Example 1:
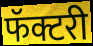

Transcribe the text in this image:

फॅक्टरी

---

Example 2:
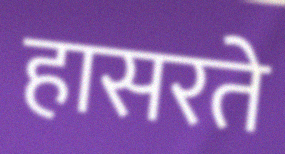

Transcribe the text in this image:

हासरते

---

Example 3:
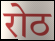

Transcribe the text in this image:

रोठ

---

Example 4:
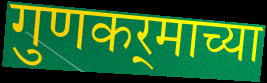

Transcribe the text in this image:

गुणकर्माच्या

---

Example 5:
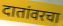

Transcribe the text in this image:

दातांवरचा